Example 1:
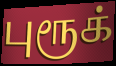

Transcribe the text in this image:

புரூக்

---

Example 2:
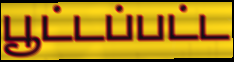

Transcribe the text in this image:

பூட்டப்பட்ட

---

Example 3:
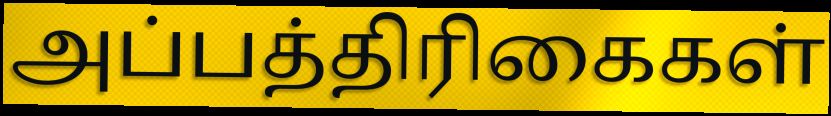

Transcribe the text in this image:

அப்பத்திரிகைகள்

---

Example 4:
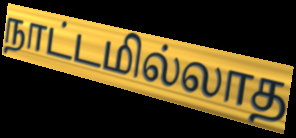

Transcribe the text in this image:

நாட்டமில்லாத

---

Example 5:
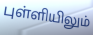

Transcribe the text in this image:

புள்ளியிலும்